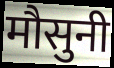
मौसुनी